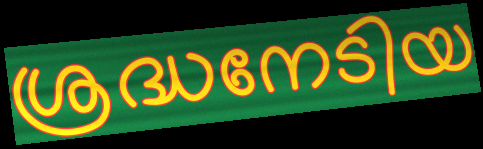
ശ്രദ്ധനേടിയ